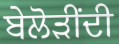
ਬੇਲੋੜੀਂਦੀ